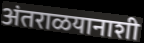
अंतराळयानाशी